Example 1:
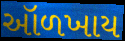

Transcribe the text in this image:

ઑળખાય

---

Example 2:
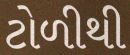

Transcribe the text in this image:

ટોળીથી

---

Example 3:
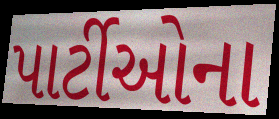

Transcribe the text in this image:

પાર્ટીઓના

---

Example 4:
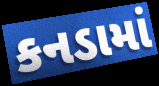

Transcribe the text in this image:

કનડામાં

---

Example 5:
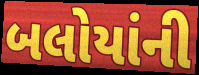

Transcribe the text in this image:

બલોયાંની